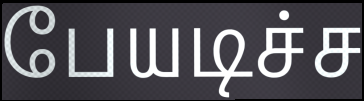
பேயடிச்ச